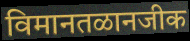
विमानतळानजीक